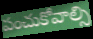
పంచుకోవాల్సి